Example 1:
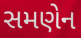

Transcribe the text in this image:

સમણેન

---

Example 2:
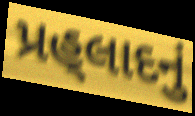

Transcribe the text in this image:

પ્રહ્‌લાદનું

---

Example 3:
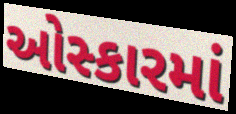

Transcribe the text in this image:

ઓસ્કારમાં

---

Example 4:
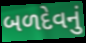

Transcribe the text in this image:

બળદેવનું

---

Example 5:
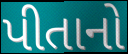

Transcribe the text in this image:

પીતાનો